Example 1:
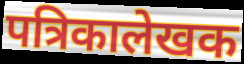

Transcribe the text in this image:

पत्रिकालेखक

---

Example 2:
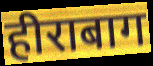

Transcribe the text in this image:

हीराबाग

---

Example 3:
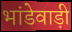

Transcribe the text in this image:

भांडेवाड़ी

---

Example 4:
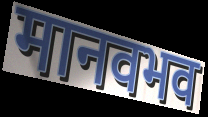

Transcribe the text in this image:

मानवभव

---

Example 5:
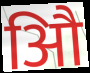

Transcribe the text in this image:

औि